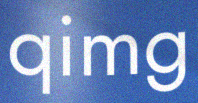
qimg